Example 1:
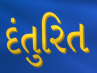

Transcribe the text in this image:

દંતુરિત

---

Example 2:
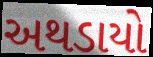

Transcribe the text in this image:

અથડાયો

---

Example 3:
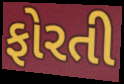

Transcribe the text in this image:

ફોરતી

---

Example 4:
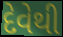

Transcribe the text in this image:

દેવેથી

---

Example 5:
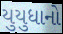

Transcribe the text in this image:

યુયુધાનો